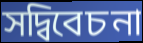
সদ্বিবেচনা